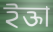
ইক্তা